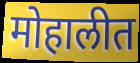
मोहालीत